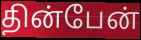
தின்பேன்